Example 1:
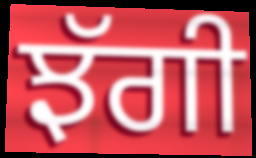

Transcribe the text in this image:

ਝੱਗੀ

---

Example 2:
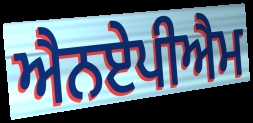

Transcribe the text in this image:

ਐਨਏਪੀਐਮ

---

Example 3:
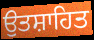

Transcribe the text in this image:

ਉੁਤਸ਼ਾਹਿਤ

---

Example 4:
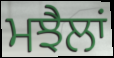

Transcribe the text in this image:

ਮਝੈਲਾਂ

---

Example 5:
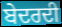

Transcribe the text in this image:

ਬੇਦਰਦੀ